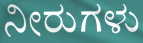
ನೀರುಗಳು